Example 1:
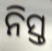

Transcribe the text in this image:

ନିସ୍ତ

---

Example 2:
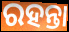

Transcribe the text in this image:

ରହନ୍ତା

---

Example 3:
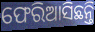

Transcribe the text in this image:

ଫେରିଆସିଛନ୍ତି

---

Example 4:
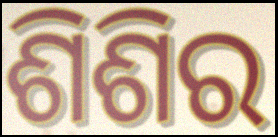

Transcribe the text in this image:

ଶିଶିର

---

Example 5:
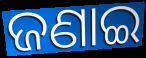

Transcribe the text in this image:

ଜଣାଇ